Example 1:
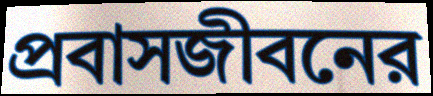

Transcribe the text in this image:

প্রবাসজীবনের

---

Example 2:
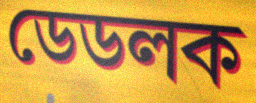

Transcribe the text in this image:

ডেডলক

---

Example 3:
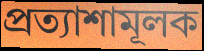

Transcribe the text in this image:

প্রত্যাশামূলক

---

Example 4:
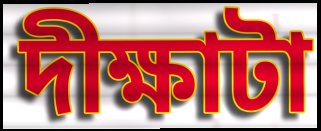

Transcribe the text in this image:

দীক্ষাটা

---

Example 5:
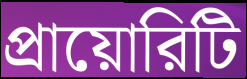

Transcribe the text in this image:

প্রায়োরিটি